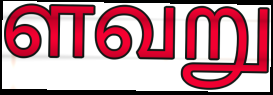
ளவறு